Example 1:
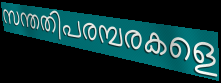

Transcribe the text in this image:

സന്തതിപരമ്പരകളെ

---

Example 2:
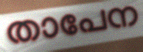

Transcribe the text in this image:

താപേന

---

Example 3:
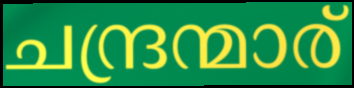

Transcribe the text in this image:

ചന്ദ്രന്മാര്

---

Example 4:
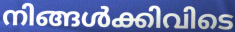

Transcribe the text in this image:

നിങ്ങൾക്കിവിടെ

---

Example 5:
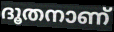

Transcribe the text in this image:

ദൂതനാണ്